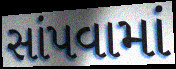
સાંપવામાં